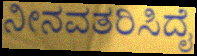
ನೀನವತರಿಸಿದೈ